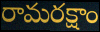
రామరక్షాం